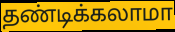
தண்டிக்கலாமா